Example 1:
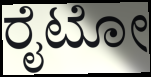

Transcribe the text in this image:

ರೈಟೋ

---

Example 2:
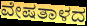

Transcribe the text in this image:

ವೇಷತಾಳದ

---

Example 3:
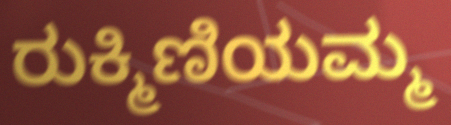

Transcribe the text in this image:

ರುಕ್ಮಿಣಿಯಮ್ಮ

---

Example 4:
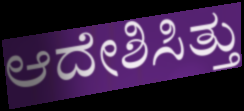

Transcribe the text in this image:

ಆದೇಶಿಸಿತ್ತು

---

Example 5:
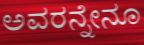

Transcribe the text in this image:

ಅವರನ್ನೇನೂ